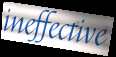
ineffective